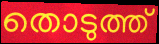
തൊടുത്ത്